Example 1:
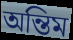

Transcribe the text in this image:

অন্তিম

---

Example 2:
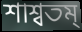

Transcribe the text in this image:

শাশ্বতম্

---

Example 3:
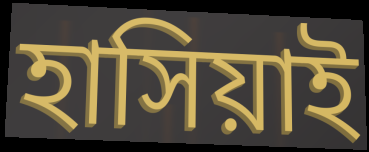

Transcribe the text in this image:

হাসিয়াই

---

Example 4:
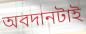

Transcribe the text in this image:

অবদানটাই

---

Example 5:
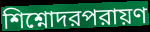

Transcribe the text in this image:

শিশ্নোদরপরায়ণ